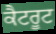
ਕੈਟਰੂਟ